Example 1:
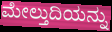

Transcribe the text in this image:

ಮೇಲ್ತುದಿಯನ್ನು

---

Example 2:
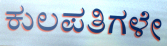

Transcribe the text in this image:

ಕುಲಪತಿಗಳೇ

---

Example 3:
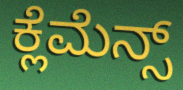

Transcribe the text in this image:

ಕ್ಲೆಮೆನ್ಸ್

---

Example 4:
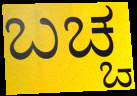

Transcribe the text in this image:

ಬಚ್ಚ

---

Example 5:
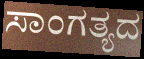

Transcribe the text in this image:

ಸಾಂಗತ್ಯದ